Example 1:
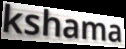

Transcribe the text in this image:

kshama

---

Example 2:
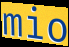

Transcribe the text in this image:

mio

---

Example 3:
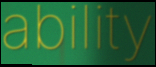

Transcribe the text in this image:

ability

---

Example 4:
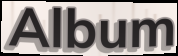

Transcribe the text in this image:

Album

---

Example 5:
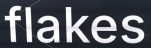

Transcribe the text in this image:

flakes